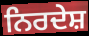
ਨਿਰਦੇਸ਼